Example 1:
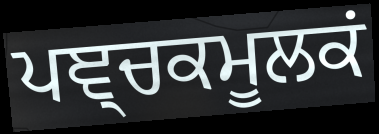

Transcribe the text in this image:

ਪਞ੍ਚਕਮੂਲਕਂ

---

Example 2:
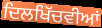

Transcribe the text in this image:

ਦਿਲਖਿੱਚਵੀਆਂ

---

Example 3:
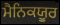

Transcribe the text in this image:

ਮੈਨਿਕਯੂਰ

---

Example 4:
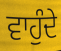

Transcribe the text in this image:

ਵਾਹੁੰਦੇ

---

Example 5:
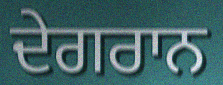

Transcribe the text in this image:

ਦੇਗਰਾਨ